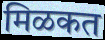
मिळकत